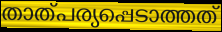
താത്പര്യപ്പെടാത്തത്